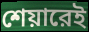
শেয়ারেই